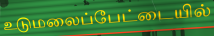
உடுமலைப்பேட்டையில்